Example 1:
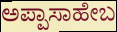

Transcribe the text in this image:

ಅಪ್ಪಾಸಾಹೇಬ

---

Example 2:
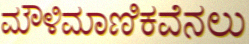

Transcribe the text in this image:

ಮೌಳಿಮಾಣಿಕವೆನಲು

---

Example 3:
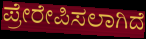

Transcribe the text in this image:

ಪ್ರೇರೇಪಿಸಲಾಗಿದೆ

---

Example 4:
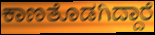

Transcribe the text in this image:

ಕಾಣತೊಡಗಿದ್ದಾರೆ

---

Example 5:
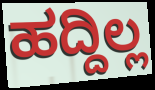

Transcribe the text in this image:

ಹದ್ದಿಲ್ಲ